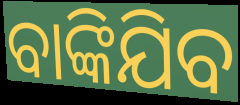
ବାଙ୍କିଯିବ